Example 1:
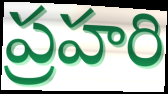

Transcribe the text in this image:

ప్రహరి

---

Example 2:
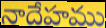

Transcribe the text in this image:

నాదేహము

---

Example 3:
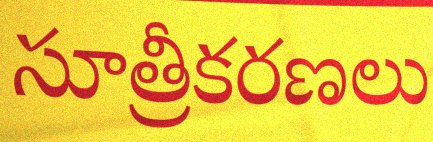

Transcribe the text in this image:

సూత్రీకరణలు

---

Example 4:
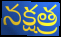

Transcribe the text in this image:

నక్షత్ర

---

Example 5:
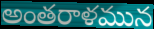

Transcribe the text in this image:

అంతరాళమున